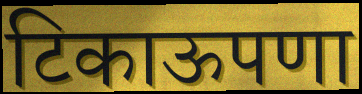
टिकाऊपणा